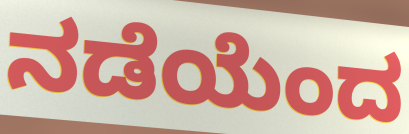
ನಡೆಯೆಂದ